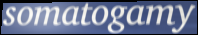
somatogamy